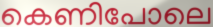
കെണിപോലെ